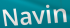
Navin